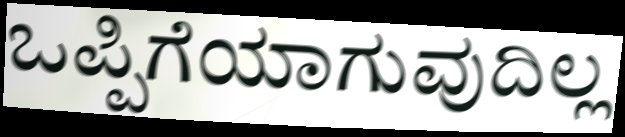
ಒಪ್ಪಿಗೆಯಾಗುವುದಿಲ್ಲ